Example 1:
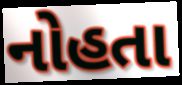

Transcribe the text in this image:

નોહતા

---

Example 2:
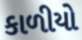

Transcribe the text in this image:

કાળીયો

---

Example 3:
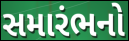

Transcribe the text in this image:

સમારંભનો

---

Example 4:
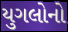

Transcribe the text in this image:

યુગલોનો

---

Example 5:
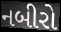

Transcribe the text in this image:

નબીરો